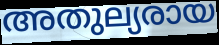
അതുല്യരായ